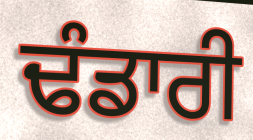
ਢੰਡਾਰੀ